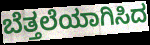
ಬೆತ್ತಲೆಯಾಗಿಸಿದ